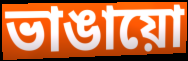
ভাঙায়ো